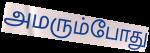
அமரும்போது